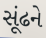
સૂંઢને